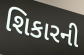
શિકારની